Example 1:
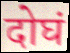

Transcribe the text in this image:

दोघं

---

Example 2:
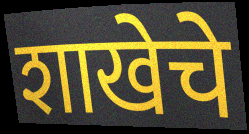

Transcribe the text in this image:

शाखेचे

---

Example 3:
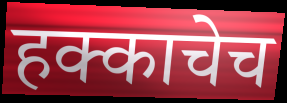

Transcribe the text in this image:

हक्काचेच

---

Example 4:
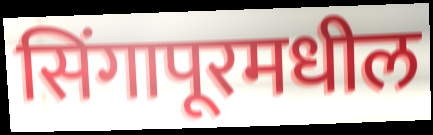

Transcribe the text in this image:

सिंगापूरमधील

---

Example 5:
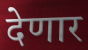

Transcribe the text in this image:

देणार